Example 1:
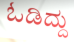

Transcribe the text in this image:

ಓಡಿದ್ದು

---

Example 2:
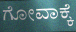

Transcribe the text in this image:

ಗೋವಾಕ್ಕೆ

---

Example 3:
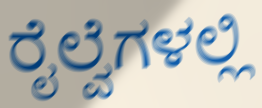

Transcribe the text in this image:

ರೈಲ್ವೆಗಳಲ್ಲಿ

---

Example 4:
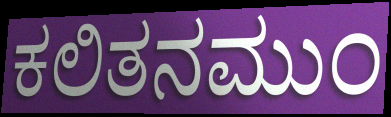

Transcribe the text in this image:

ಕಲಿತನಮುಂ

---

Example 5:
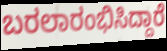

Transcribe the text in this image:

ಬರಲಾರಂಭಿಸಿದ್ದಾರೆ